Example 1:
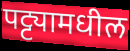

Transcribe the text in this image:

पट्ट्यामधील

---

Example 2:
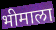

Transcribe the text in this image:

भीमाला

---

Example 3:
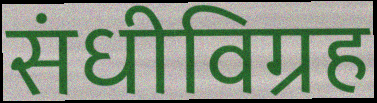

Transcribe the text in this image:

संधीविग्रह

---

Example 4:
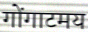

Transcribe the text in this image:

गोंगाटमय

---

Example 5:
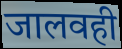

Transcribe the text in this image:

जालवही